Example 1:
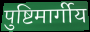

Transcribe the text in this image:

पुष्टिमार्गीय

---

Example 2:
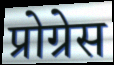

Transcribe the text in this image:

प्रोग्रेस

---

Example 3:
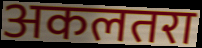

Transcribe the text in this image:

अकलतरा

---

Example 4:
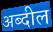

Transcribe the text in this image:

अब्दील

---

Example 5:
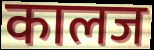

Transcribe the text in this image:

कालज